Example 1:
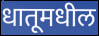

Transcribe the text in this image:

धातूमधील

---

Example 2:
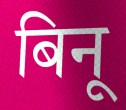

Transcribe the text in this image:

बिनू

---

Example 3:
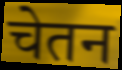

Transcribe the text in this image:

चेतन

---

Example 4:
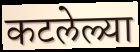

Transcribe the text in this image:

कटलेल्या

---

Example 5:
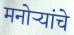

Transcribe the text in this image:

मनोऱ्यांचे